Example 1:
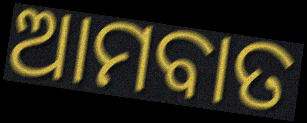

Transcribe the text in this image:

ଆମବାତ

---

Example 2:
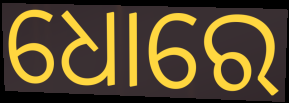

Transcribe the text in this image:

ଧୋରେ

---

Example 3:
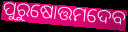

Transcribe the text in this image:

ପୁରୁଷୋତ୍ତମଦେବ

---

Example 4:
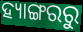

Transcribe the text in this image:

ହ୍ୟାଙ୍ଗରରୁ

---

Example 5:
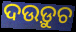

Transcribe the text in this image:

ଦଉଡ଼ୁଚ